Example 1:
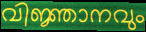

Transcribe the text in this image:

വിജ്ഞാനവും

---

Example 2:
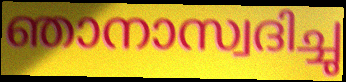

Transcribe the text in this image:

ഞാനാസ്വദിച്ചു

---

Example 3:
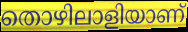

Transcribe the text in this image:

തൊഴിലാളിയാണ്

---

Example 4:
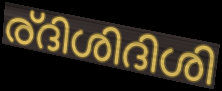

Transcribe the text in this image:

ര്ദിശിദിശി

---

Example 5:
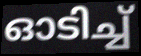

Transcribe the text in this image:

ഓടിച്ച്